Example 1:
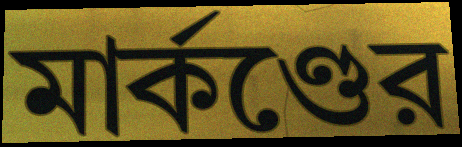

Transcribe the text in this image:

মার্কণ্ডের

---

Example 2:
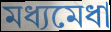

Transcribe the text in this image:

মধ্যমেধা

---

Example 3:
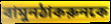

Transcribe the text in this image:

বামুনঠাকরুনকে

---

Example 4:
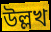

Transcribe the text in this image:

উল্লখ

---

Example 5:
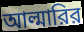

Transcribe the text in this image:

আল্মারির